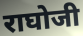
राघोजी